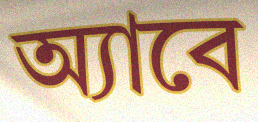
অ্যাবে